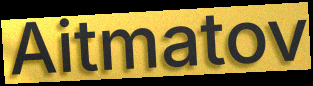
Aitmatov